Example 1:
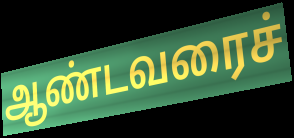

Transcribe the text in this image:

ஆண்டவரைச்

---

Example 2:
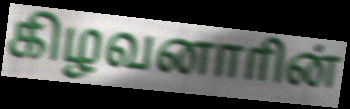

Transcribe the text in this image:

கிழவனாரின்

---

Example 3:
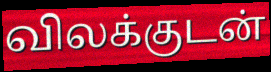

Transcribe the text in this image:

விலக்குடன்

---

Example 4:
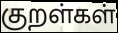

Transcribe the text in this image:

குறள்கள்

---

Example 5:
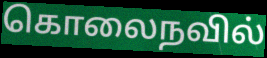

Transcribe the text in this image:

கொலைநவில்